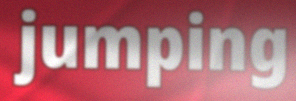
jumping